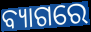
ବ୍ୟାଗରେ